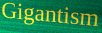
Gigantism